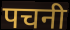
पचनी